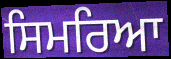
ਸਿਮਰਿਆ